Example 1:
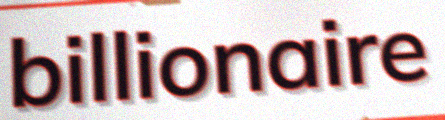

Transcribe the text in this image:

billionaire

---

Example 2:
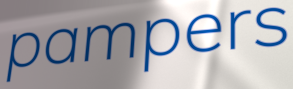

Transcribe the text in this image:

pampers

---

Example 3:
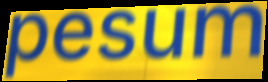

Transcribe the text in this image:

pesum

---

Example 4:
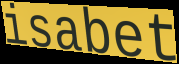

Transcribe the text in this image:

isabet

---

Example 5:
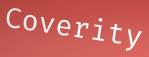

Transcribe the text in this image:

Coverity